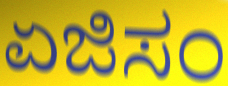
ಏಜಿಸಂ